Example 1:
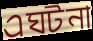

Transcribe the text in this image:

এঘটনা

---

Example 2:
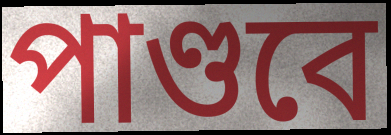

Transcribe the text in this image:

পাণ্ডবে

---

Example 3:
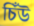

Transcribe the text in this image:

চিঁউ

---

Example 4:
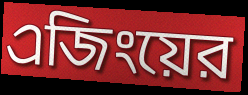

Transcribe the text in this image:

এজিংয়ের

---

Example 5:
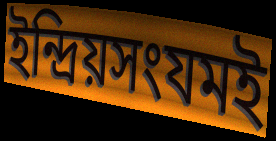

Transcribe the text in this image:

ইন্দ্রিয়সংযমই